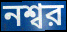
নশ্বর